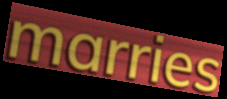
marries